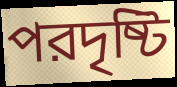
পরদৃষ্টি